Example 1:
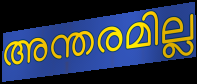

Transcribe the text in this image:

അന്തരമില്ല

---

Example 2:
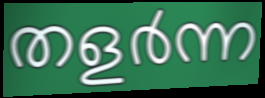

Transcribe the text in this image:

തളർന്ന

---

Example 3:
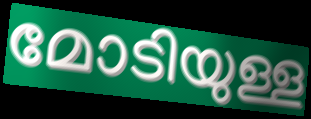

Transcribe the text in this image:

മോടിയുള്ള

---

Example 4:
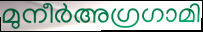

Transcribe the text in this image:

മുനീർഅഗ്രഗാമി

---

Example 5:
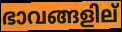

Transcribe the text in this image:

ഭാവങ്ങളില്